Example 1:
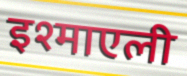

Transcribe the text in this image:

इश्माएली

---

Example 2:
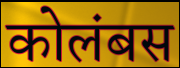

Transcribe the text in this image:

कोलंबस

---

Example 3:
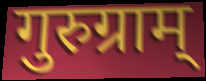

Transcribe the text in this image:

गुरुग्राम्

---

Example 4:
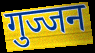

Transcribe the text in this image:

गुज्जन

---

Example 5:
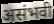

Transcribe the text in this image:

असंभवी